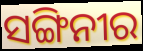
ସଙ୍ଗିନୀର